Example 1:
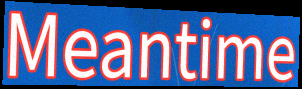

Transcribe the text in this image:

Meantime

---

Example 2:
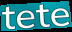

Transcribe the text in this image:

tete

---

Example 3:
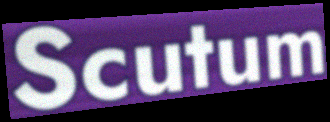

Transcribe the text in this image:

Scutum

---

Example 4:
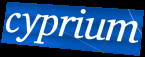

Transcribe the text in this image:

cyprium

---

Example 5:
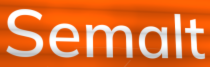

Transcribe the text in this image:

Semalt